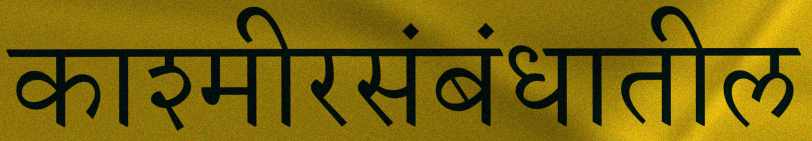
काश्मीरसंबंधातील